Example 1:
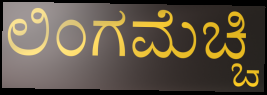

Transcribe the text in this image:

ಲಿಂಗಮೆಚ್ಚಿ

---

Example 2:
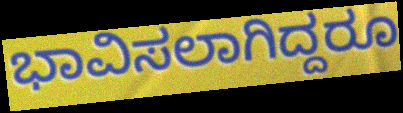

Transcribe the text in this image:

ಭಾವಿಸಲಾಗಿದ್ದರೂ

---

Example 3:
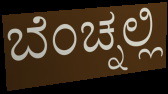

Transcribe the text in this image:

ಬೆಂಚ್ನಲ್ಲಿ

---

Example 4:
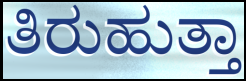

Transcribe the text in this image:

ತಿರುಹುತ್ತಾ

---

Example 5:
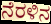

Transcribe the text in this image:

ನೆರಳಿನ